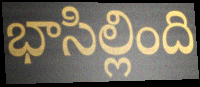
భాసిల్లింది